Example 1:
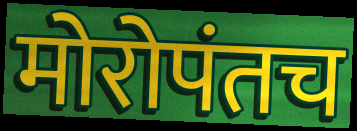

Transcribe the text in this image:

मोरोपंतच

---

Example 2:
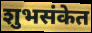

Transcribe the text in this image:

शुभसंकेत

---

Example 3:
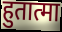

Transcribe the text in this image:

हुतात्मा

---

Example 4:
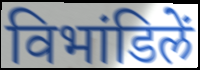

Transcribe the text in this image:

विभांडिलें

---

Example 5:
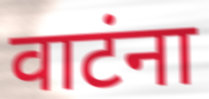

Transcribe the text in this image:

वाटंना